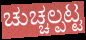
ಚುಚ್ಚಲ್ಪಟ್ಟ